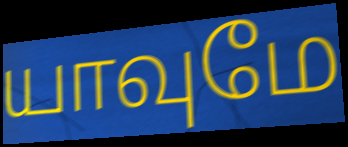
யாவுமே